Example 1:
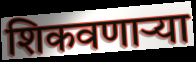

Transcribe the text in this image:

शिकवणाऱ्या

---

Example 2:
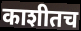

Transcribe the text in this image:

काशीतच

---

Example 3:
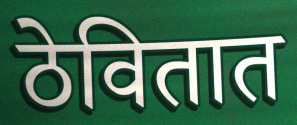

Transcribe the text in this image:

ठेवितात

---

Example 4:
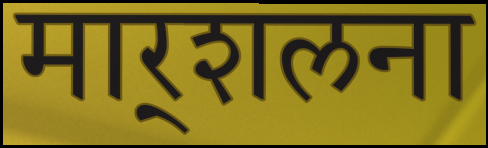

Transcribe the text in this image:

मार्शलना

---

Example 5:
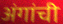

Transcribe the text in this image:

अंगांची